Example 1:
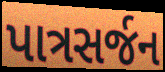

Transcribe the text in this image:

પાત્રસર્જન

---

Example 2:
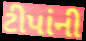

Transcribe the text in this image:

ટીપાંની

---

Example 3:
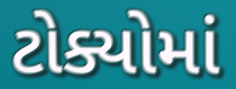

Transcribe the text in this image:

ટોક્યોમાં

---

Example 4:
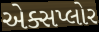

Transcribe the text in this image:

એક્સપ્લોર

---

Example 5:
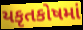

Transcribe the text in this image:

યકૃતકોષમાં